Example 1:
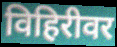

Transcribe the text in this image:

विहिरीवर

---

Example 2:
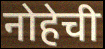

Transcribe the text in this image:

नोहेची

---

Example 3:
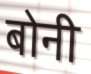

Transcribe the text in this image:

बोनी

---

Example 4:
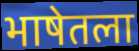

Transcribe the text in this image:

भाषेतला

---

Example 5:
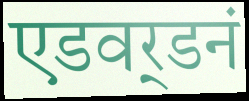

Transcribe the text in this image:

एडवर्डनं